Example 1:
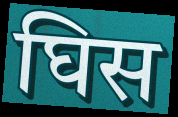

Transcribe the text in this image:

घिस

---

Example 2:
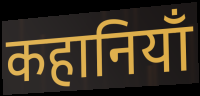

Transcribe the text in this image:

कहानियाँ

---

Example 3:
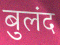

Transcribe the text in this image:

बुलंद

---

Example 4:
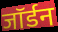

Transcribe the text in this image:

जॉर्डन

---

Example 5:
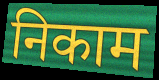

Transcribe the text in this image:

निकाम